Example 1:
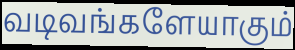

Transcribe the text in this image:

வடிவங்களேயாகும்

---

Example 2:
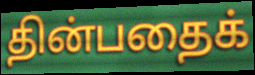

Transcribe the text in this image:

தின்பதைக்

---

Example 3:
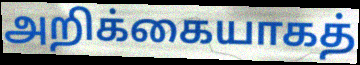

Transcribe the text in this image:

அறிக்கையாகத்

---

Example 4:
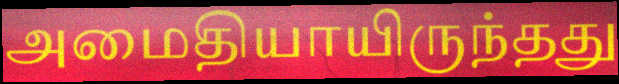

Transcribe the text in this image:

அமைதியாயிருந்தது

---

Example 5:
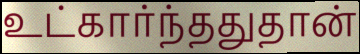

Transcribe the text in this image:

உட்கார்ந்ததுதான்